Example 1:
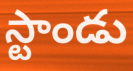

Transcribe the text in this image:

స్టాండు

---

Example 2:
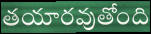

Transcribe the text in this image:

తయారవుతోంది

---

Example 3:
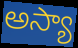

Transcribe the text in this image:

అస్యా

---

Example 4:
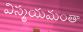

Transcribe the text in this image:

విస్మయమంతా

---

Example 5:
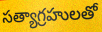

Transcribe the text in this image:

సత్యాగ్రహులతో